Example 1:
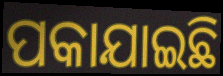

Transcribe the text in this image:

ପକାଯାଇଛି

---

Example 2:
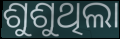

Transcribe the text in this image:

ଶୁଶୁଥିଲା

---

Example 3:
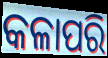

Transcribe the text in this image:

କଳାପରି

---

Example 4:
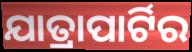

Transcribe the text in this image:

ଯାତ୍ରାପାର୍ଟିର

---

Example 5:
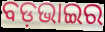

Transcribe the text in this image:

ବଡ଼ଭାଇର